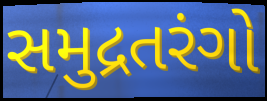
સમુદ્રતરંગો